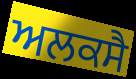
ਅਲਕਸੈ